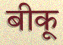
बीकू